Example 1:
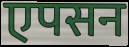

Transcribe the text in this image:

एपसन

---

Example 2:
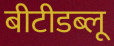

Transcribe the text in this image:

बीटीडब्लू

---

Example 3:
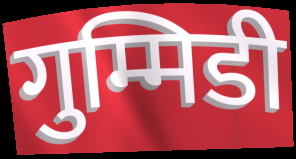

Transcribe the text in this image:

गुम्मिडी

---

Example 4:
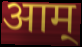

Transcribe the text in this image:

आम्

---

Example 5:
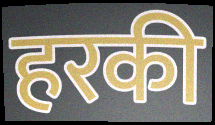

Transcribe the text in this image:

हरकी